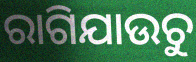
ରାଗିଯାଉଚୁ